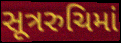
સૂત્રરુચિમાં